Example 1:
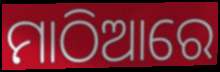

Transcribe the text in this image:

ମାଠିଆରେ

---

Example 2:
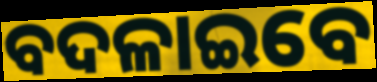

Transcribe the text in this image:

ବଦଳାଇବେ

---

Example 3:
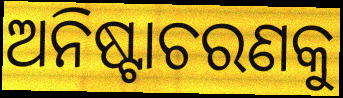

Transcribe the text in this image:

ଅନିଷ୍ଟାଚରଣକୁ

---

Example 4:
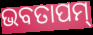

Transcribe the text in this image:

ଭବତାପମ୍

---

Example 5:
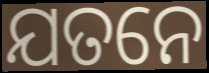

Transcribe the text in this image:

ଯତନେ